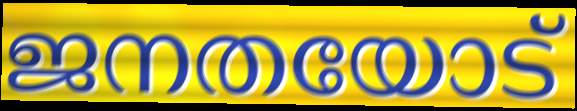
ജനതയോട്